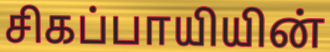
சிகப்பாயியின்